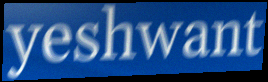
yeshwant